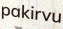
pakirvu